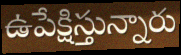
ఉపేక్షిస్తున్నారు